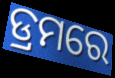
ଡ୍ରମରେ